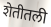
शेतीतली